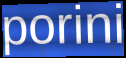
porini